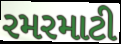
રમરમાટી